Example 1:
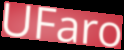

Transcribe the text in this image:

UFaro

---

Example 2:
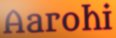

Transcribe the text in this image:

Aarohi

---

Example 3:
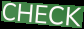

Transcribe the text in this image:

CHECK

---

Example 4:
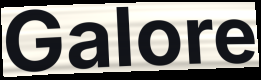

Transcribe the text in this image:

Galore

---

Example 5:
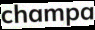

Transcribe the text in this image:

champa